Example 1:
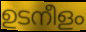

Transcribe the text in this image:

ഉടനീളം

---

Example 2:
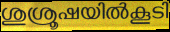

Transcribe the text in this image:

ശുശ്രൂഷയിൽകൂടി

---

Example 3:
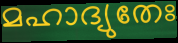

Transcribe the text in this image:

മഹാദ്യുതേഃ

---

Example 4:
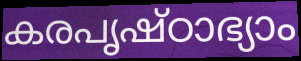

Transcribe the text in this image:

കരപൃഷ്ഠാഭ്യാം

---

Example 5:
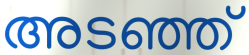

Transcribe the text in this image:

അടഞ്ഞ്